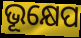
ଭୂକ୍ଷେପ